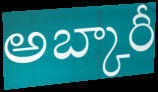
అబ్కారీ